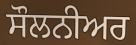
ਸੌਲਨੀਅਰ